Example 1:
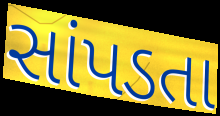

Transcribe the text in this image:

સાંપડતા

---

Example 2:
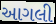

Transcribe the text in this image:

આગલી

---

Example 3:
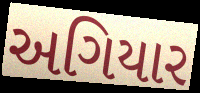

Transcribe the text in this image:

અગિયાર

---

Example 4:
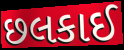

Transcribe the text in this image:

છલકાઈ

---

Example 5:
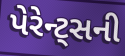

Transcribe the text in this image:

પેરેન્ટ્સની